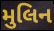
મુલિન